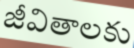
జీవితాలకు